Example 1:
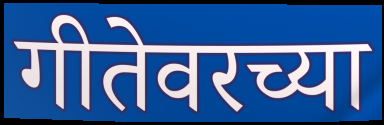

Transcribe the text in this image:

गीतेवरच्या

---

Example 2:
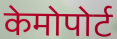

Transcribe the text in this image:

केमोपोर्ट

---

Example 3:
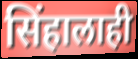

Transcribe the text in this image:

सिंहालाही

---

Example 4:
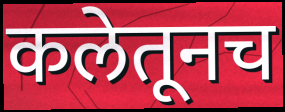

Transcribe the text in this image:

कलेतूनच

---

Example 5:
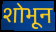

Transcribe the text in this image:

शोभून